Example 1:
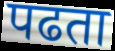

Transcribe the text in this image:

पढता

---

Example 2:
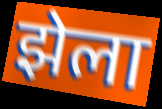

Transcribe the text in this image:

झेला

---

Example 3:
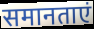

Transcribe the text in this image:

समानताएं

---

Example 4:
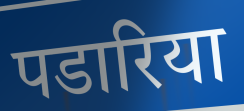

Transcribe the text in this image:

पडारिया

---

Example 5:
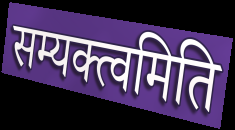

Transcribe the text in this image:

सम्यक्त्वमिति